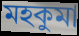
মহকুমা